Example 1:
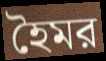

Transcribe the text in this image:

হৈমর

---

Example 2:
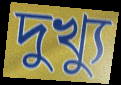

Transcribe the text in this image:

দুখ্যু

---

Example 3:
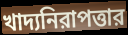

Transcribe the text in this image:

খাদ্যনিরাপত্তার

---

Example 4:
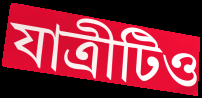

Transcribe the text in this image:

যাত্রীটিও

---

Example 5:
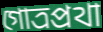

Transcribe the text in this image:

গোত্রপ্রথা